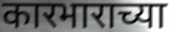
कारभाराच्या